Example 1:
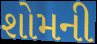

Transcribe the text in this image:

શોમની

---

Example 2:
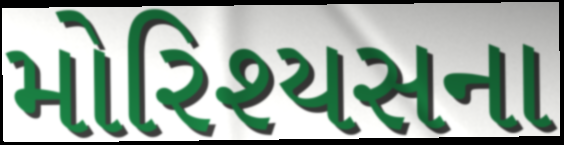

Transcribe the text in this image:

મોરિશ્યસના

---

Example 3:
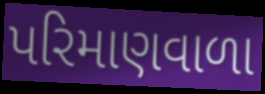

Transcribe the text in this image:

પરિમાણવાળા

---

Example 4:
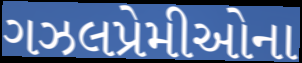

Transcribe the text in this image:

ગઝલપ્રેમીઓના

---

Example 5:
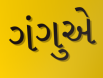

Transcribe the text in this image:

ગંગુએ